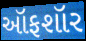
ઑફશૉર